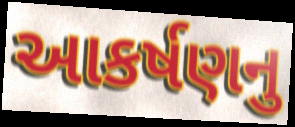
આકર્ષણનુ